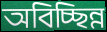
অবিচ্ছিন্ন